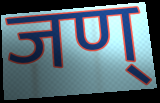
जण्